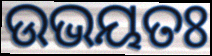
ଉଭୟତଃ